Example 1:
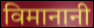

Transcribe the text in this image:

विमानानी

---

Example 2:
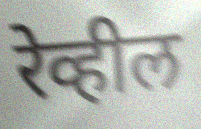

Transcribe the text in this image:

रेव्हील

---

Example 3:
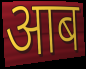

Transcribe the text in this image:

आब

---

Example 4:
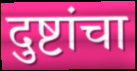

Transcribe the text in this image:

दुष्टांचा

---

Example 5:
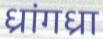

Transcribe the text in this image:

ध्रांगध्रा